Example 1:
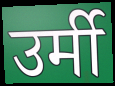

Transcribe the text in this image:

उर्मी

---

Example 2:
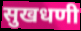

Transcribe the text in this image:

सुखधणी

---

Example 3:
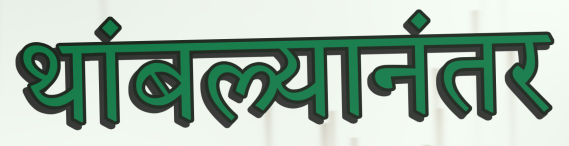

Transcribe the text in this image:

थांबल्यानंतर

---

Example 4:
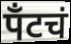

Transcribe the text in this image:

पँटचं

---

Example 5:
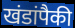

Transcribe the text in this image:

खंडांपैकी